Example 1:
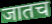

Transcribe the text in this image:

जातच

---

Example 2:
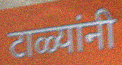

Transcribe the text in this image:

टाळ्यांनी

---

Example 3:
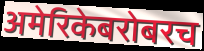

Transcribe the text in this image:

अमेरिकेबरोबरच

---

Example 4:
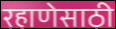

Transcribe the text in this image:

रहाणेसाठी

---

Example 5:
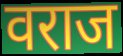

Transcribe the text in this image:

वराज